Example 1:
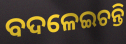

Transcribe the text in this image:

ବଦଳେଇଚନ୍ତି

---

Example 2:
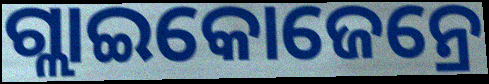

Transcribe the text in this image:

ଗ୍ଲାଇକୋଜେନ୍ରେ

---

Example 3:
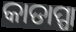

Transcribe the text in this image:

କାଡାପ୍ପା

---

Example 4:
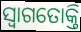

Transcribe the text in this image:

ସ୍ଵାଗତୋକ୍ତି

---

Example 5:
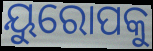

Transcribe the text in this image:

ୟୁରୋପକୁ